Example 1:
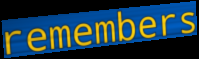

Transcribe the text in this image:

remembers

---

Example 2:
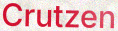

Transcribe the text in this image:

Crutzen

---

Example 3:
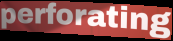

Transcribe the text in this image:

perforating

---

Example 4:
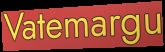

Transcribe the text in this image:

Vatemargu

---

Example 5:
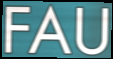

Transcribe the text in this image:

FAU